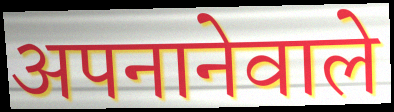
अपनानेवाले